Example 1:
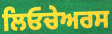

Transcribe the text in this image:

ਲਿਓਚੇਅਰਸ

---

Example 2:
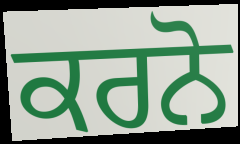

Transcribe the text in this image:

ਕਰਨੋ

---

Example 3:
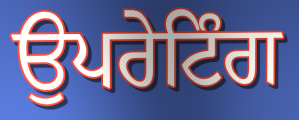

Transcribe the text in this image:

ਉਪਰੇਟਿੰਗ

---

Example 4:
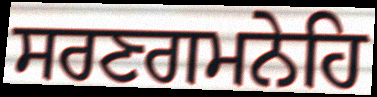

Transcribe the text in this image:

ਸਰਣਗਮਨੇਹਿ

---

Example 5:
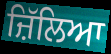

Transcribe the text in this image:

ਜ਼ਿੱਲਿਆ